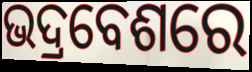
ଭଦ୍ରବେଶରେ